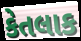
કેતલાક